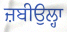
ਜ਼ਬੀਉਲ੍ਹਾ